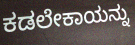
ಕಡಲೇಕಾಯನ್ನು